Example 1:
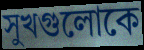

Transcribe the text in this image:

সুখগুলোকে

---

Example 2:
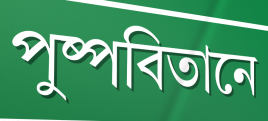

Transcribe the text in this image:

পুষ্পবিতানে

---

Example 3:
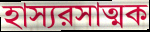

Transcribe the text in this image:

হাস্যরসাত্মক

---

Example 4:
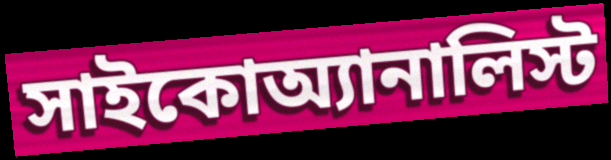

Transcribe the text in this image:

সাইকোঅ্যানালিস্ট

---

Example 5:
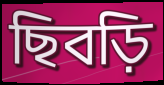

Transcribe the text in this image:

ছিবড়ি